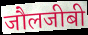
जौलजीबी